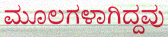
ಮೂಲಗಳಾಗಿದ್ದವು